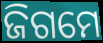
ଜିଗମେ